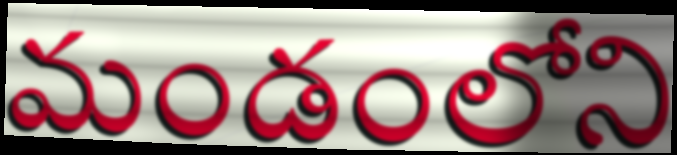
మండంలోని